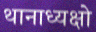
थानाध्यक्षो